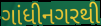
ગાંધીનગરથી